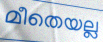
മീതെയല്ല